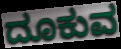
ದೂಕುವ